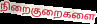
நிறைகுறைகளை